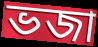
ভজা